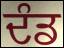
ਦੰਡ